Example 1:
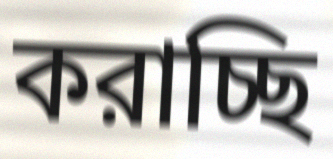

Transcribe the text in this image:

করাচ্ছি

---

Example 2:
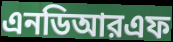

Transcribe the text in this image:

এনডিআরএফ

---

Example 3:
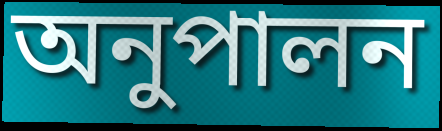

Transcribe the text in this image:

অনুপালন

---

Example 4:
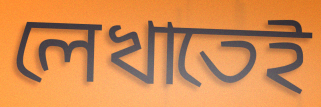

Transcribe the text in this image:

লেখাতেই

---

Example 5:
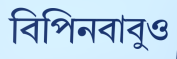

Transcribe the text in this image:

বিপিনবাবুও